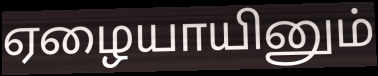
ஏழையாயினும்